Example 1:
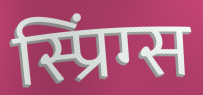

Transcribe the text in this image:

स्प्रिंग्स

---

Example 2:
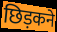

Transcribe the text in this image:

छिड़कने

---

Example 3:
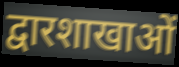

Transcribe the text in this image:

द्वारशाखाओं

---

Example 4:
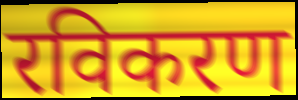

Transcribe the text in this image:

रविकरण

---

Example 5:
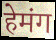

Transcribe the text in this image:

हेमंग